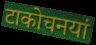
टाकोचनयां